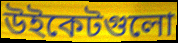
উইকেটগুলো